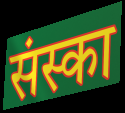
संस्का